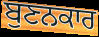
ਬੁਣਨਕਾਰ